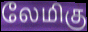
லேமிகு